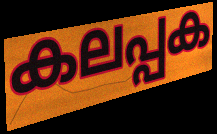
കലപ്പക